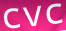
cvc